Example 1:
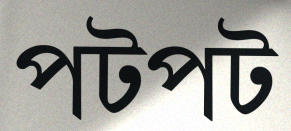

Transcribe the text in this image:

পটপট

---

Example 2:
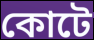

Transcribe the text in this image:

কোটে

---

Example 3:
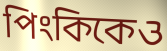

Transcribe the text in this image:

পিংকিকেও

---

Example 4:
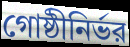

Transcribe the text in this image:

গোষ্ঠীনির্ভর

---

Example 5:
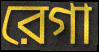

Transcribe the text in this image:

রেগা